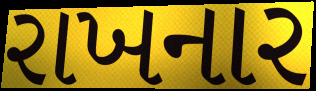
રાખનાર